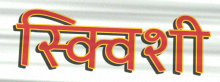
स्क्विशी